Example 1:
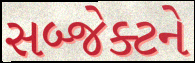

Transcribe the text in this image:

સબ્જેક્ટને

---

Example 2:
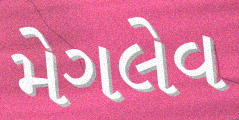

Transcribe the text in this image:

મેગલેવ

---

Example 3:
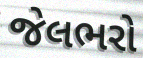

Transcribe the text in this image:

જેલભરો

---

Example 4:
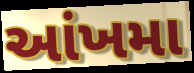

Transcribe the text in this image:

આંખમા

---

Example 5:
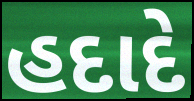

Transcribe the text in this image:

હદાદે